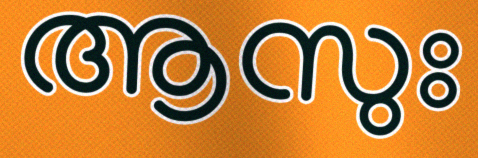
ആസുഃ